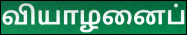
வியாழனைப்